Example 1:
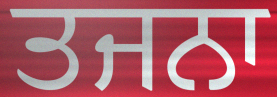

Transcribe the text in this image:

ਤਜਨਾ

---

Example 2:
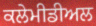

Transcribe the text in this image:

ਕਲੇਮੀਡੀਅਲ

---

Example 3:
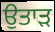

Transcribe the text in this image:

ਉਤਾਡ਼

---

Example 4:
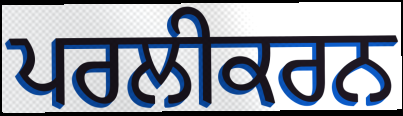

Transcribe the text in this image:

ਪਰਲੀਕਰਨ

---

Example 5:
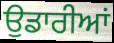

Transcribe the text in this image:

ਉਡਾਰੀਆਂ